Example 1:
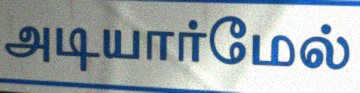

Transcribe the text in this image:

அடியார்மேல்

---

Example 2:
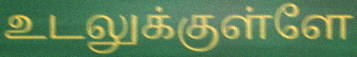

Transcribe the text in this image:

உடலுக்குள்ளே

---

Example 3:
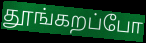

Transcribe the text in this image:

தூங்கறப்போ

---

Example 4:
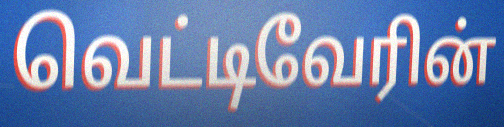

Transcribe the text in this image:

வெட்டிவேரின்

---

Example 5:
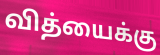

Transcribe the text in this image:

வித்யைக்கு